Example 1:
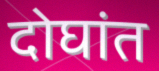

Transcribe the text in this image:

दोघांत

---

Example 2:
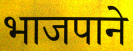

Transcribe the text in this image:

भाजपाने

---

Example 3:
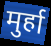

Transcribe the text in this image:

मुर्हा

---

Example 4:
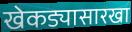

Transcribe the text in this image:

खेकड्यासारखा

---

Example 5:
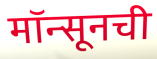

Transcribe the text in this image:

मॉन्सूनची